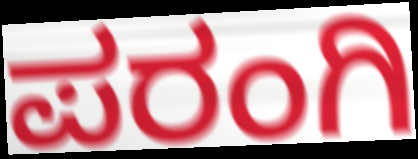
ಪರಂಗಿ